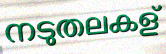
നടുതലകള്